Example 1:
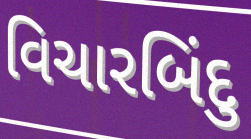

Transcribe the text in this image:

વિચારબિંદુ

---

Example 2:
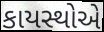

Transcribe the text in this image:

કાયસ્થોએ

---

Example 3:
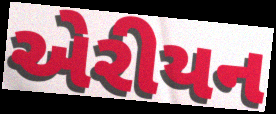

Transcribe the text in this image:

એરીયન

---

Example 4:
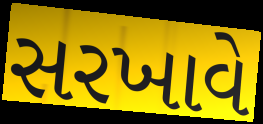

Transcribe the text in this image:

સરખાવે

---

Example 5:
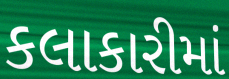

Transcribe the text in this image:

કલાકારીમાં